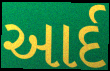
આર્દ